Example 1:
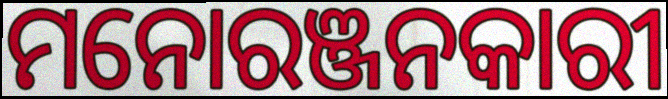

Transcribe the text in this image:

ମନୋରଞ୍ଜନକାରୀ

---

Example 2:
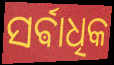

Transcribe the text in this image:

ସର୍ଵାଧିକ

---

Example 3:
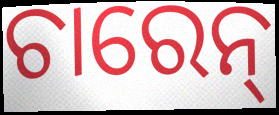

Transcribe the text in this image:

ଚାରେନ୍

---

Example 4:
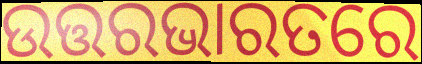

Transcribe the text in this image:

ଉତ୍ତରଭାରତରେ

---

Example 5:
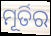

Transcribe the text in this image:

ମୂର୍ତିର